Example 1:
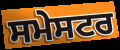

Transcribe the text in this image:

ਸਮੇਸਟਰ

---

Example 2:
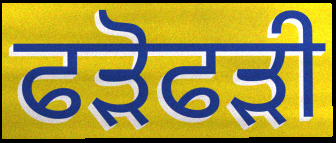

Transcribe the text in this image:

ਫੜੋਫੜੀ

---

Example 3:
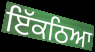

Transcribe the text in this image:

ਇੱਕਠਿਆ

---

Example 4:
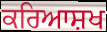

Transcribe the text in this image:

ਕਰਿਆਸ਼ਖ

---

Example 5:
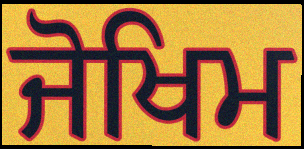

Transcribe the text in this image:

ਜੋਖਿਮ